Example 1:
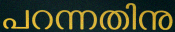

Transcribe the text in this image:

പറന്നതിനു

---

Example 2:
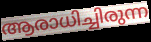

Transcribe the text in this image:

ആരാധിച്ചിരുന്ന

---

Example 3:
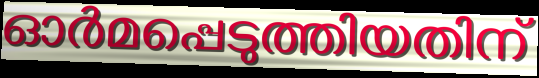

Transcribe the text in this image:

ഓർമപ്പെടുത്തിയതിന്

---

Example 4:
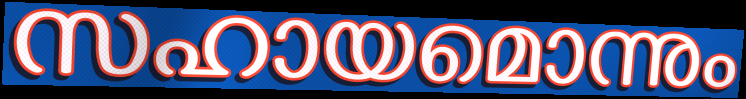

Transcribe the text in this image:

സഹായമൊന്നും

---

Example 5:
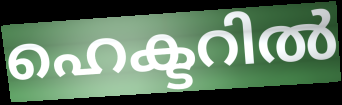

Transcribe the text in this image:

ഹെക്ടറിൽ